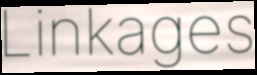
Linkages